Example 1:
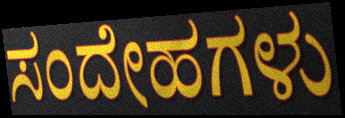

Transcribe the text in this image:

ಸಂದೇಹಗಳು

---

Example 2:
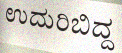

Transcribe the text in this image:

ಉದುರಿಬಿದ್ದ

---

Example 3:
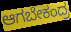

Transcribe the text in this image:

ಆಗಬೇಕಂದ್ರ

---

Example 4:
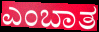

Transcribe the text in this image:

ಎಂಬಾತ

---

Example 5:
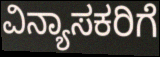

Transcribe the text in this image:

ವಿನ್ಯಾಸಕರಿಗೆ